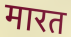
मारत